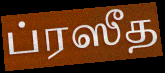
ப்ரஸீத